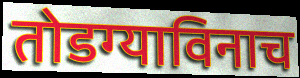
तोडग्याविनाच